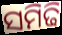
ସମିଢି